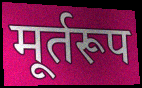
मूर्तरूप